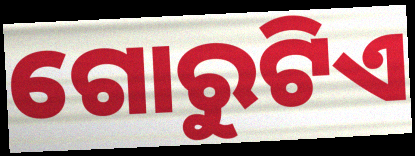
ଗୋରୁଟିଏ